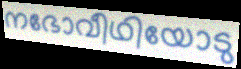
നഭോവീഥിയോടു